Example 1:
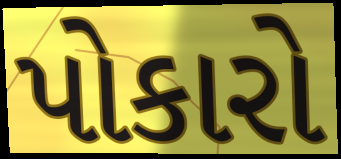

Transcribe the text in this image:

પોકારો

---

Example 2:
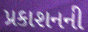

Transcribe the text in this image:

પ્રકાશનની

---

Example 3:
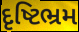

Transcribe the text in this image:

દૃષ્ટિભ્રમ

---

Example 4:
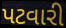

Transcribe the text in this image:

પટવારી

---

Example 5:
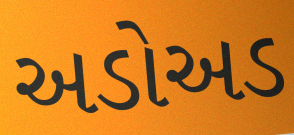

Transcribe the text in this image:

અડોઅડ